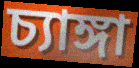
চ্যাঙ্গা